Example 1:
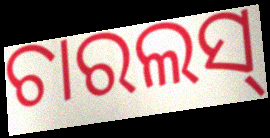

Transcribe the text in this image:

ଚାରଲସ୍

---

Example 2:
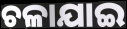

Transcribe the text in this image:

ଚଳାଯାଇ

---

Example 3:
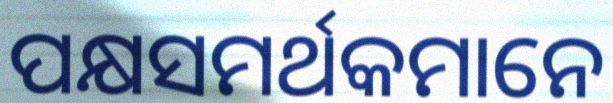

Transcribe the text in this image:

ପକ୍ଷସମର୍ଥକମାନେ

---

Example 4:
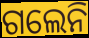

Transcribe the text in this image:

ଗଲେନି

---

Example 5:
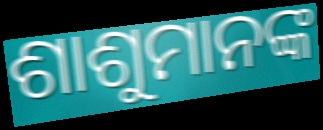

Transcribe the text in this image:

ଶାଶୁମାନଙ୍କ